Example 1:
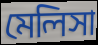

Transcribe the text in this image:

মেলিসা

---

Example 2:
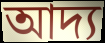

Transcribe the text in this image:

আদ্য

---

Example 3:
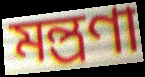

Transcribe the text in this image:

মন্ত্রণা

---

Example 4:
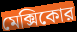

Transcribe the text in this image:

মেক্সিকোর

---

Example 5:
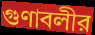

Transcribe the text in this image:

গুণাবলীর